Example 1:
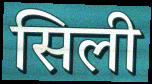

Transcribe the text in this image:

सिली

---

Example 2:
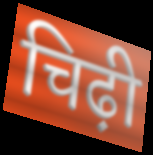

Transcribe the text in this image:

चिढ़ी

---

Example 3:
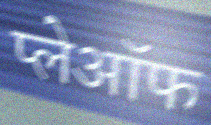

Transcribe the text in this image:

प्लेऑफ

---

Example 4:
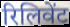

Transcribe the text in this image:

रिलिवेंट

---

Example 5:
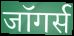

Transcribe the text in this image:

जॉगर्स